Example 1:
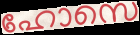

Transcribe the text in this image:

ഹോസെ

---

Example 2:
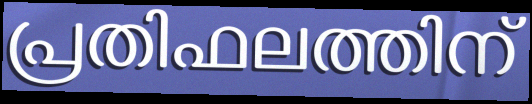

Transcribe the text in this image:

പ്രതിഫലത്തിന്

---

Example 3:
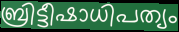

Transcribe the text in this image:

ബ്രിട്ടീഷാധിപത്യം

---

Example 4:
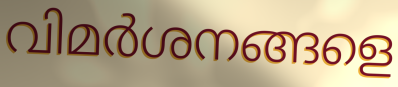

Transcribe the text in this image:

വിമർശനങ്ങളെ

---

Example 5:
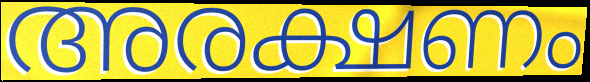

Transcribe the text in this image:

അരക്ഷണം